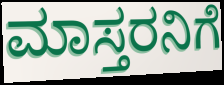
ಮಾಸ್ತರನಿಗೆ